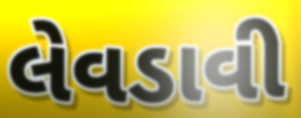
લેવડાવી